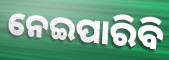
ନେଇପାରିବି